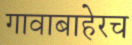
गावाबाहेरच